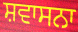
ਸ਼ਵਾਸਨਾ